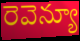
రెవెన్యూ